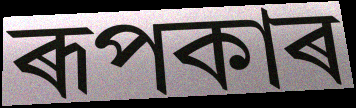
ৰূপকাৰ